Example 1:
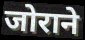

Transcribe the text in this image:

जोराने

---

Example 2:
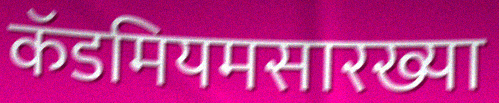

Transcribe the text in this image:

कॅडमियमसारख्या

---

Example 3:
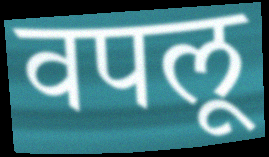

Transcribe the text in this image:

वपलू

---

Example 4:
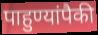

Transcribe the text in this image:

पाहुण्यांपैकी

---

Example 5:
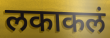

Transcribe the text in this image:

लकाकलं